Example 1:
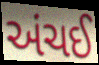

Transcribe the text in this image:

અંચઈ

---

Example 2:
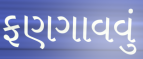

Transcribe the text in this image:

ફણગાવવું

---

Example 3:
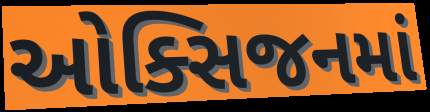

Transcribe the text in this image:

ઓક્સિજનમાં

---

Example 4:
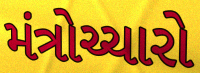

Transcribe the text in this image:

મંત્રોચ્ચારો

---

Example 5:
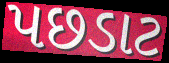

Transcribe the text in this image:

પછડાટ